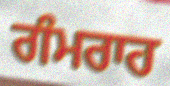
ਗੰਮਰਾਹ